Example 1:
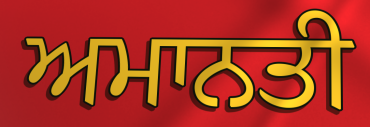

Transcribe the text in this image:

ਅਮਾਨਤੀ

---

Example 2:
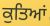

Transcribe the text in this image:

ਕੁਤਿਆਂ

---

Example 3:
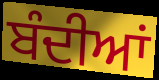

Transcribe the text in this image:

ਬੰਦੀਆਂ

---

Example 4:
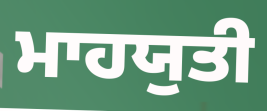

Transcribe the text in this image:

ਮਾਹਯੁਤੀ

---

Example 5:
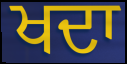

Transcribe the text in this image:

ਖਦਾ